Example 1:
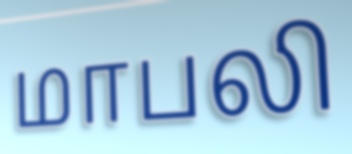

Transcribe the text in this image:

மாபலி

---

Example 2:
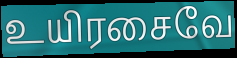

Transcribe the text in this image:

உயிரசைவே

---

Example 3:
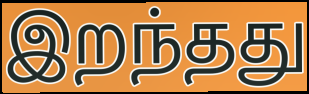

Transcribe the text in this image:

இறந்தது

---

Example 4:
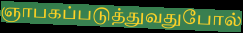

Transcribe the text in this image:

ஞாபகப்படுத்துவதுபோல்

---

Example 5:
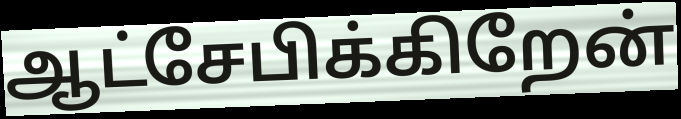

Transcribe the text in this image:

ஆட்சேபிக்கிறேன்